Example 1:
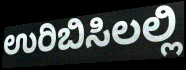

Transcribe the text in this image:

ಉರಿಬಿಸಿಲಲ್ಲಿ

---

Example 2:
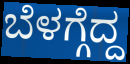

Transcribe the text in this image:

ಬೆಳಗ್ಗೆದ್ದ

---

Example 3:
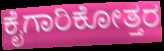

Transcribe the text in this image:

ಕೈಗಾರಿಕೋತ್ತರ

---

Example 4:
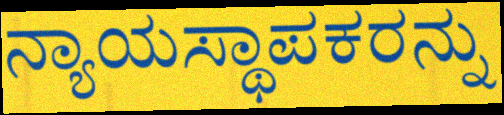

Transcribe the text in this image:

ನ್ಯಾಯಸ್ಥಾಪಕರನ್ನು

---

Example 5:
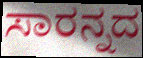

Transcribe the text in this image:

ಸಾರನ್ನದ